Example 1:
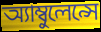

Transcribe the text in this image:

অ্যাম্বুলেন্সে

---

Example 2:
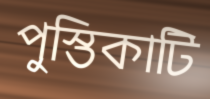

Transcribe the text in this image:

পুস্তিকাটি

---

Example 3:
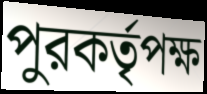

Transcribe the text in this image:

পুরকর্তৃপক্ষ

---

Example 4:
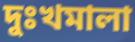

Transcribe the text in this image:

দুঃখমালা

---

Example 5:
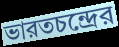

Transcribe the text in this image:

ভারতচন্দ্রের